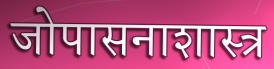
जोपासनाशास्त्र